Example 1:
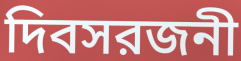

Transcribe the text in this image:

দিবসরজনী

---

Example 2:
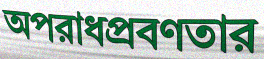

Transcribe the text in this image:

অপরাধপ্রবণতার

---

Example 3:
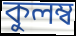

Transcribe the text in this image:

কুলম্ব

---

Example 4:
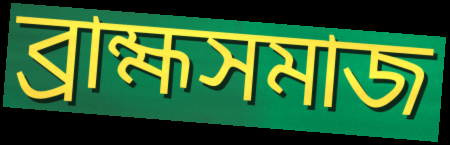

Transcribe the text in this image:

ব্রাহ্মসমাজ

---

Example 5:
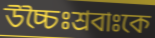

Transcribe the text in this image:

উচ্চৈঃশ্রবাঃকে